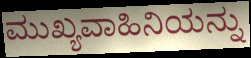
ಮುಖ್ಯವಾಹಿನಿಯನ್ನು